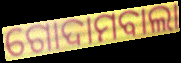
ଗୋଦାମବାଲା